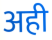
अही